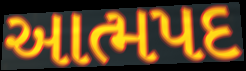
આત્મપદ